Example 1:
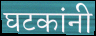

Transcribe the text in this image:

घटकांनी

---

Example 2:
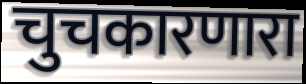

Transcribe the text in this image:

चुचकारणारा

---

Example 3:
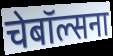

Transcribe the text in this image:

चेबॉल्सना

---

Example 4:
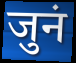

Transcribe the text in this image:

जुनं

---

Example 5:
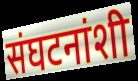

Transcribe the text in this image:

संघटनांशी